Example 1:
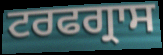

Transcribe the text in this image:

ਟਰਫਗ੍ਰਾਸ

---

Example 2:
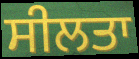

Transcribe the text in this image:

ਸੀਲਤਾ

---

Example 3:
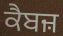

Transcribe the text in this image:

ਕੈਬਜ਼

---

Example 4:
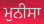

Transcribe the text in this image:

ਮੁਨੀਸਾ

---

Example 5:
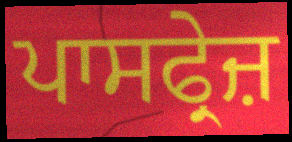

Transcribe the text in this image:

ਪਾਸਫ੍ਰੇਜ਼